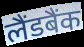
लैंडबैंक